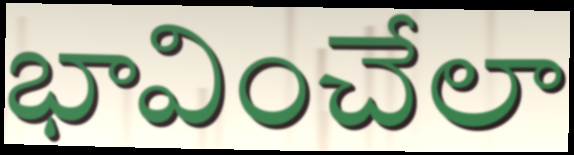
భావించేలా